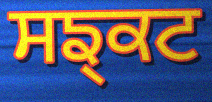
ਸਙ੍ਕਟ